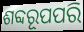
ଶବ୍ଦରୂପପରି